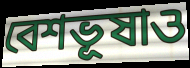
বেশভূষাও